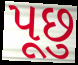
પૂછુ